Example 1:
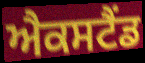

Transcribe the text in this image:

ਐਕਸਟੈਂਡ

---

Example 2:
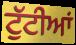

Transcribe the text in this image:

ਟੁੱਟੀਆਂ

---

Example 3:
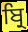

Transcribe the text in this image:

ਬ੍ਰਿ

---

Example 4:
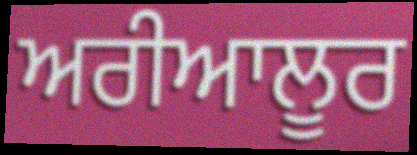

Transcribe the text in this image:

ਅਰੀਆਲੂਰ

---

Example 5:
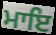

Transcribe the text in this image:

ਮਾਇ